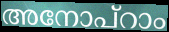
അനോപ്റാം